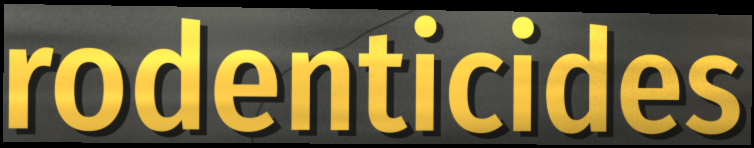
rodenticides